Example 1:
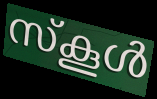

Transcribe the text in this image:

സ്‌കൂൾ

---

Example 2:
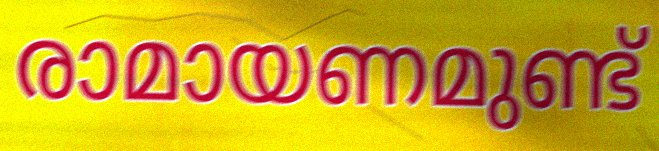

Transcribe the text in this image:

രാമായണമുണ്ട്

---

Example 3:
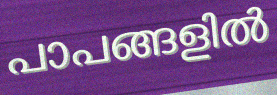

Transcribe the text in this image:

പാപങ്ങളിൽ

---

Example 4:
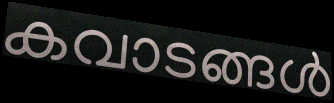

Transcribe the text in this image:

കവാടങ്ങൾ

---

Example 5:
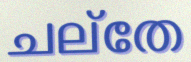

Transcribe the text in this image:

ചല്തേ